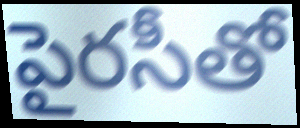
పైరసీతో